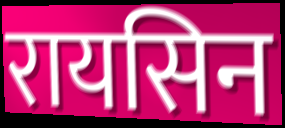
रायसिन